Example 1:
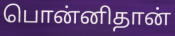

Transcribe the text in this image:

பொன்னிதான்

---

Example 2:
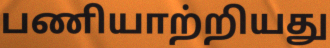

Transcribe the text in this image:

பணியாற்றியது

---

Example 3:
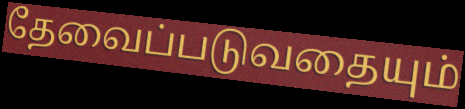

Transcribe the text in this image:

தேவைப்படுவதையும்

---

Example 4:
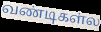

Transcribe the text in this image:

வண்டிகள்ல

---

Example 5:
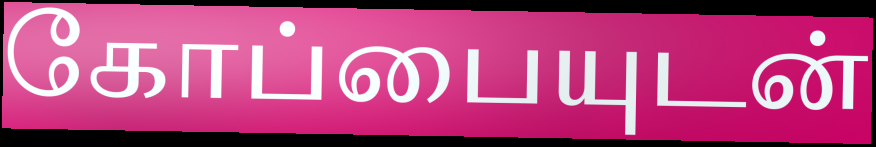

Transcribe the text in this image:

கோப்பையுடன்